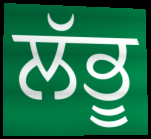
ਲੱਭੂ